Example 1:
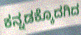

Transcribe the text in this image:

ಕನ್ನಡಕ್ಕೊದಗಿದ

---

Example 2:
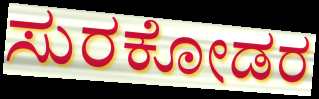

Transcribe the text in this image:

ಸುರಕೋಡರ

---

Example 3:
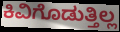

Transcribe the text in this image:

ಕಿವಿಗೊಡುತ್ತಿಲ್ಲ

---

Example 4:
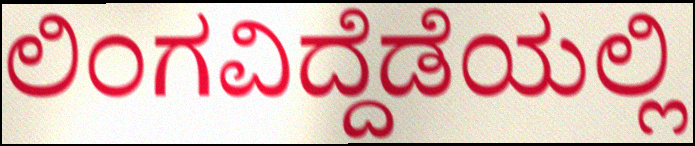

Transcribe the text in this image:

ಲಿಂಗವಿದ್ದೆಡೆಯಲ್ಲಿ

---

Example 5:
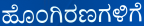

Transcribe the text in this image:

ಹೊಂಗಿರಣಗಳಿಗೆ